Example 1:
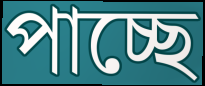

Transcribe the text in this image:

পাচ্ছে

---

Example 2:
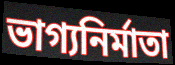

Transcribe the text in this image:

ভাগ্যনির্মাতা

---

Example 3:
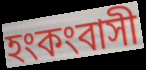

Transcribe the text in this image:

হংকংবাসী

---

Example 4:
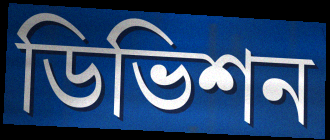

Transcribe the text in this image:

ডিভিশন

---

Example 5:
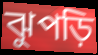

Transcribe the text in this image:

ঝুপড়ি